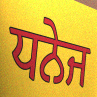
ਧਨੇਜ